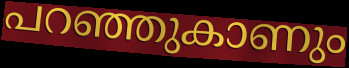
പറഞ്ഞുകാണും